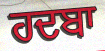
ਹਦਬਾ